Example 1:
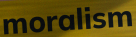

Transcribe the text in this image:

moralism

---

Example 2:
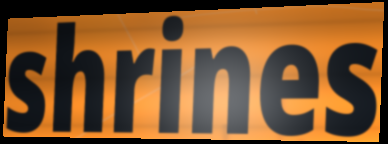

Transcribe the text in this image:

shrines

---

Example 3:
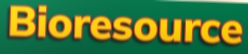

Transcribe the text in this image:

Bioresource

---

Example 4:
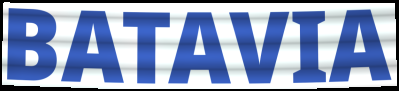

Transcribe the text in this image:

BATAVIA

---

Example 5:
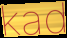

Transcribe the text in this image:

kad